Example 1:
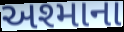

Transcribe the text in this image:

અશ્માના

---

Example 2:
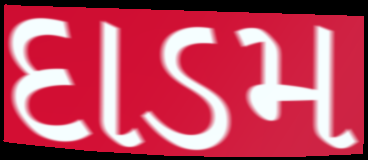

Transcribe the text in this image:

દાડમ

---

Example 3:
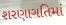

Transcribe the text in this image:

શરણાગતિમાં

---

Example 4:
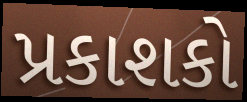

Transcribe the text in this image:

પ્રકાશકો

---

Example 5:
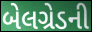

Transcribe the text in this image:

બેલગ્રેડની